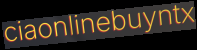
ciaonlinebuyntx